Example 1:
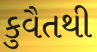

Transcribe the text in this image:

કુવૈતથી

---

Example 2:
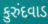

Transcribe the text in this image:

કુરુંદવાડ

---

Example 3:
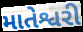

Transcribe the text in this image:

માતેશ્વરી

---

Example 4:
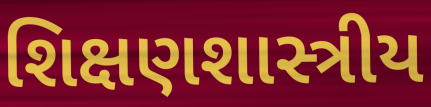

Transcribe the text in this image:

શિક્ષણશાસ્ત્રીય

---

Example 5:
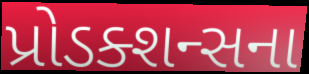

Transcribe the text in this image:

પ્રોડક્શન્સના